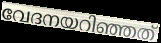
വേദനയറിഞ്ഞത്